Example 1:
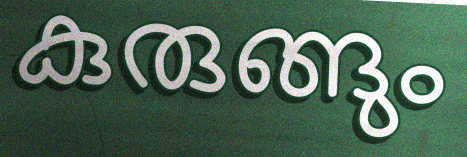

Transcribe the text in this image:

കുരുങ്ങും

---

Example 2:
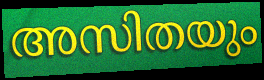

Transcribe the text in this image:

അസിതയും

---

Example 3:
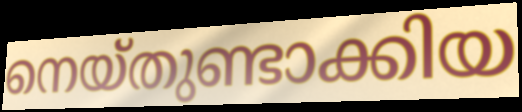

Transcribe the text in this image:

നെയ്തുണ്ടാക്കിയ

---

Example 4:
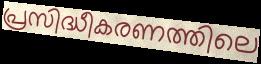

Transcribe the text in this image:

പ്രസിദ്ധീകരണത്തിലെ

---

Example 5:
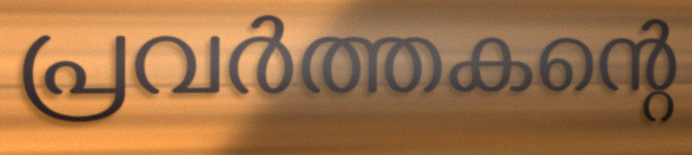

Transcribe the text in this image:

പ്രവർത്തകന്റെ